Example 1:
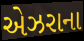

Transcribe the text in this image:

એઝરાના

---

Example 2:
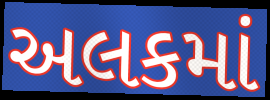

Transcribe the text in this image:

અલકમાં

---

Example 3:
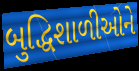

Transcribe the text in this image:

બુદ્ધિશાળીઓને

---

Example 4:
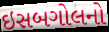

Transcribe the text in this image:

ઇસબગોલનો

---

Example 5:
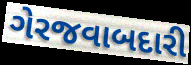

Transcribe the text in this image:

ગેરજવાબદારી